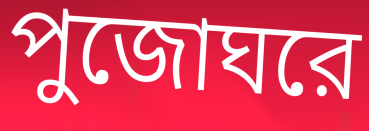
পুজোঘরে